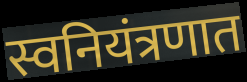
स्वनियंत्रणात